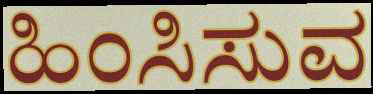
ಹಿಂಸಿಸುವ